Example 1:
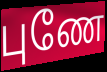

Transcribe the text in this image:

புணே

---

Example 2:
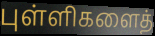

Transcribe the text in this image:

புள்ளிகளைத்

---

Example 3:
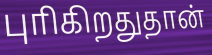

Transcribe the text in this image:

புரிகிறதுதான்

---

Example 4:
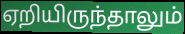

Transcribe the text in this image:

ஏறியிருந்தாலும்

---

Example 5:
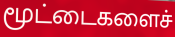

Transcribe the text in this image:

மூட்டைகளைச்